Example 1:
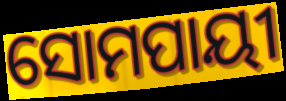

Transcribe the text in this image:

ସୋମପାୟୀ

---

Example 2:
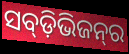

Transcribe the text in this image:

ସବ୍‍ଡ଼ିଭିଜନ୍‍ର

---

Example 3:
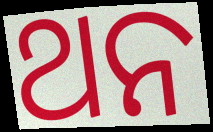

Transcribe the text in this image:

ଥନ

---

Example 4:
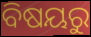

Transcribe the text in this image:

ବିଷୟରୁ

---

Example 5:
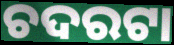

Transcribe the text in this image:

ଚଦରଟା